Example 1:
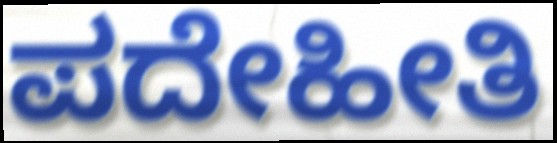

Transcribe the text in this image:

ಪದೇಹೀತಿ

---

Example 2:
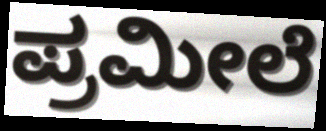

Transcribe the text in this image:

ಪ್ರಮೀಲೆ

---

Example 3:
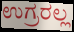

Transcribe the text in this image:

ಉಗ್ರರಲ್ಲ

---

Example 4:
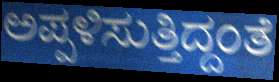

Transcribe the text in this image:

ಅಪ್ಪಳಿಸುತ್ತಿದ್ದಂತೆ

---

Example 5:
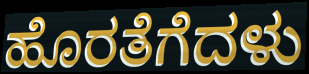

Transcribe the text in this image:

ಹೊರತೆಗೆದಳು